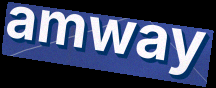
amway